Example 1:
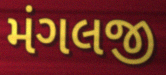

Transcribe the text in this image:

મંગલજી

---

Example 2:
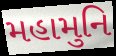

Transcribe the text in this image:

મહામુનિ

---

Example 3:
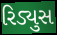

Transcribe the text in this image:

રિડ્યુસ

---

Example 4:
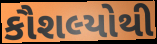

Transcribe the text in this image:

કૌશલ્યોથી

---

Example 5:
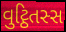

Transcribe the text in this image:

વુટ્ઠિતસ્સ